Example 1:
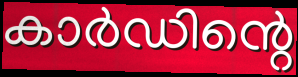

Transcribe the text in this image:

കാർഡിന്റെ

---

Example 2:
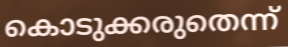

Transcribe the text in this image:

കൊടുക്കരുതെന്ന്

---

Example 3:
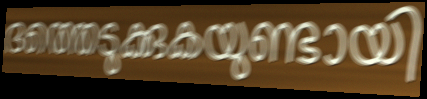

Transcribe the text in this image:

ദത്തെടുക്കുകയുണ്ടായി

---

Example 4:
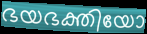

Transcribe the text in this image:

ഭയഭക്തിയോ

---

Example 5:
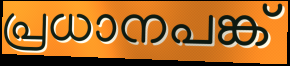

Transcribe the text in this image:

പ്രധാനപങ്ക്